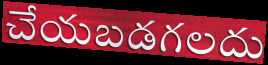
చేయబడగలదు